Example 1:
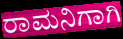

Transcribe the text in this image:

ರಾಮನಿಗಾಗಿ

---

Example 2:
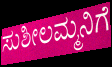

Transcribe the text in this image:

ಸುಶೀಲಮ್ಮನಿಗೆ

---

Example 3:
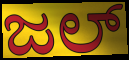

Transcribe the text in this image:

ಜಲ್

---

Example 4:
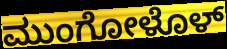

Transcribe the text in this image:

ಮುಂಗೋಳೊಳ್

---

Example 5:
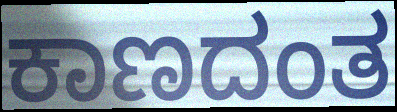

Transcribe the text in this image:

ಕಾಣದಂತ